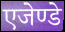
एजेण्डे